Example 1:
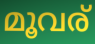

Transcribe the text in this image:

മൂവര്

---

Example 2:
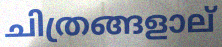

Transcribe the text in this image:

ചിത്രങ്ങളാല്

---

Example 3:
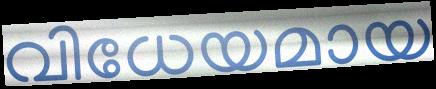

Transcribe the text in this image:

വിധേയമായ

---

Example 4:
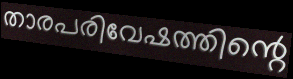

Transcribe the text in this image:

താരപരിവേഷത്തിന്റെ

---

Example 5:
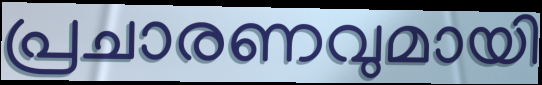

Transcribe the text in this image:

പ്രചാരണവുമായി